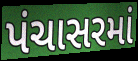
પંચાસરમાં